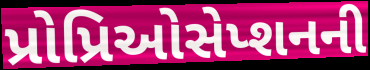
પ્રોપ્રિઓસેપ્શનની